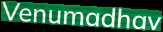
Venumadhav